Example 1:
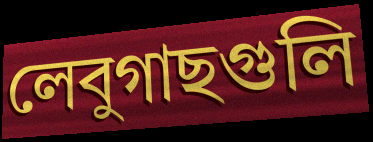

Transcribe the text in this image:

লেবুগাছগুলি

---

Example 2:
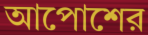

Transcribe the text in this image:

আপোশের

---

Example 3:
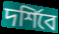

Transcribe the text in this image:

দর্শিবে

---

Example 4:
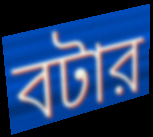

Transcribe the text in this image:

বটার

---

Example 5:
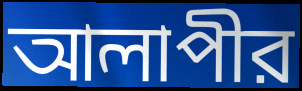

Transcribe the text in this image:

আলাপীর